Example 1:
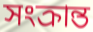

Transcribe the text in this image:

সংক্রান্ত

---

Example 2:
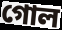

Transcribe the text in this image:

গোল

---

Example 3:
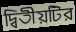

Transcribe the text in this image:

দ্বিতীয়টির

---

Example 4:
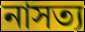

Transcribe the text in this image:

নাসত্য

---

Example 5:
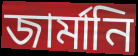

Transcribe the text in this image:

জার্মানি